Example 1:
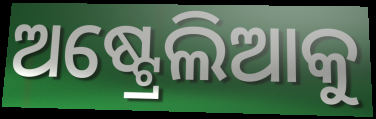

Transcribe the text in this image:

ଅଷ୍ଟ୍ରେଲିଆକୁ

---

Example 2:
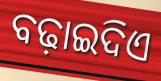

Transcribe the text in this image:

ବଢ଼ାଇଦିଏ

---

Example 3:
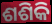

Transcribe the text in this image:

ଶଶିକି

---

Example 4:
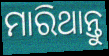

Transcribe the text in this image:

ମାରିଥାନ୍ତୁ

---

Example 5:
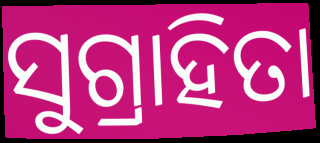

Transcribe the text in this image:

ସୁଗ୍ରାହିତା